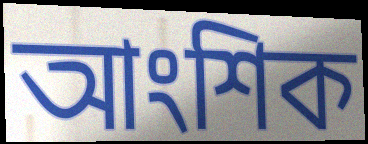
আংশিক